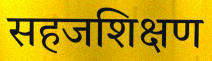
सहजशिक्षण